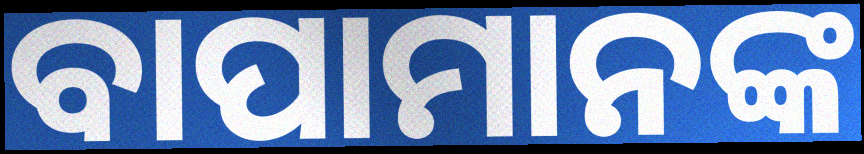
ବାପାମାନଙ୍କ